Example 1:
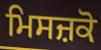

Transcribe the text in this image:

ਮਿਸਜ਼ਕੋ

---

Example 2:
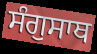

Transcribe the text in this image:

ਸੰਗੁਸਾਥ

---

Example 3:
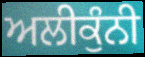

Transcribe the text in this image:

ਅਲੀਕੁੰਨੀ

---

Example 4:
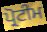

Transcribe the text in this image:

ਪ੍ਰੋਟੀਮ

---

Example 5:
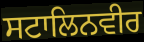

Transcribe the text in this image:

ਸਟਾਲਿਨਵੀਰ